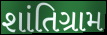
શાંતિગ્રામ